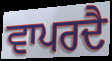
ਵਾਪਰਦੈ